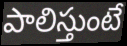
పాలిస్తుంటే